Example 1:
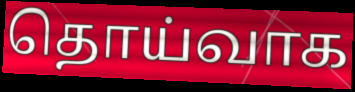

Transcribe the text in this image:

தொய்வாக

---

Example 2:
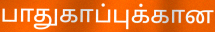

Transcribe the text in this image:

பாதுகாப்புக்கான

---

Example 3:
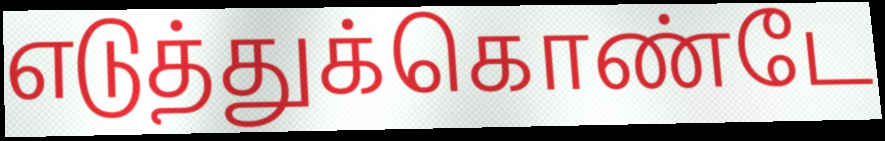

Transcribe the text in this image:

எடுத்துக்கொண்டே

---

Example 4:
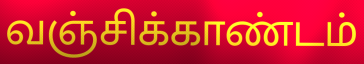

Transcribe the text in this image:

வஞ்சிக்காண்டம்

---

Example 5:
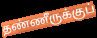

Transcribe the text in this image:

தண்ணீருக்குப்